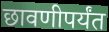
छावणीपर्यंत